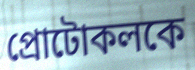
প্রোটোকলকে